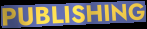
PUBLISHING